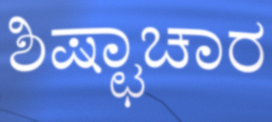
ಶಿಷ್ಟಾಚಾರ